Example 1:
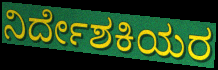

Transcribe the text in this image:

ನಿರ್ದೇಶಕಿಯರ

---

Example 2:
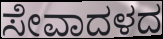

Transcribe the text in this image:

ಸೇವಾದಳದ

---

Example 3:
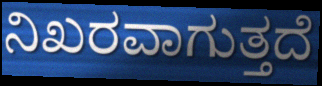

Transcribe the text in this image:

ನಿಖರವಾಗುತ್ತದೆ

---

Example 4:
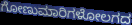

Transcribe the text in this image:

ಗೋಣುಮಾರಿಗಳೋಲಗದ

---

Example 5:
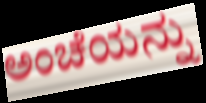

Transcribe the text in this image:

ಅಂಚೆಯನ್ನು